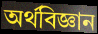
অৰ্থবিজ্ঞান